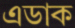
এডাক